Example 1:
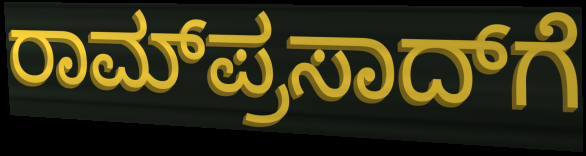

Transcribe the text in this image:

ರಾಮ್‌ಪ್ರಸಾದ್‌ಗೆ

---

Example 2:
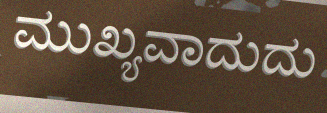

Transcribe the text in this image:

ಮುಖ್ಯವಾದುದು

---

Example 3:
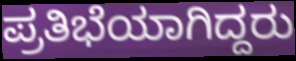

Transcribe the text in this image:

ಪ್ರತಿಭೆಯಾಗಿದ್ದರು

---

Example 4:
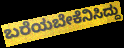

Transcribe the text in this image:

ಬರೆಯಬೇಕೆನಿಸಿದ್ದು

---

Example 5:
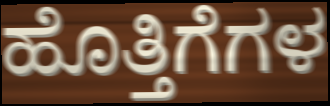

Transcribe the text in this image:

ಹೊತ್ತಿಗೆಗಳ